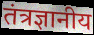
तंत्रज्ञानीय